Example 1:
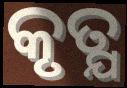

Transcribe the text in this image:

କୃତ୍ଯ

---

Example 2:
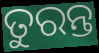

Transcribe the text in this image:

ତୁରନ୍ତ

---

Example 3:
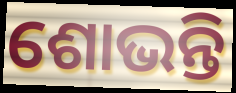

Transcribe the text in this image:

ଶୋଭନ୍ତି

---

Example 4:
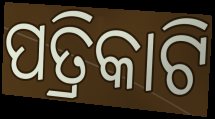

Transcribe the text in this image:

ପତ୍ରିକାଟି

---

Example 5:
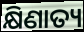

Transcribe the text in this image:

କ୍ଷିଣାତ୍ୟ